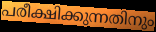
പരീക്ഷിക്കുന്നതിനും